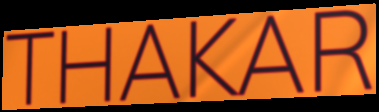
THAKAR